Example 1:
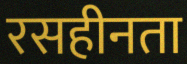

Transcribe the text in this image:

रसहीनता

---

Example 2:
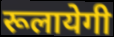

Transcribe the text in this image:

रूलायेगी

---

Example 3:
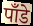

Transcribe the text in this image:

पाँडे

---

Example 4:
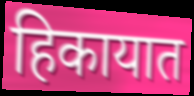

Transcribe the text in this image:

हिकायात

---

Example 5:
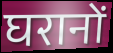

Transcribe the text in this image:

घरानों